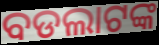
ବଡଲାଟଙ୍କ